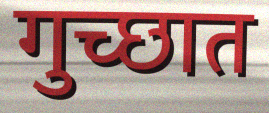
गुच्छात